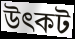
উৎকট